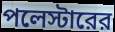
পলেস্টারের